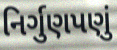
નિર્ગુણપણું